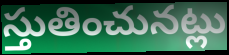
స్తుతించునట్లు